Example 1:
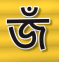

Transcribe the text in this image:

জঁ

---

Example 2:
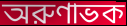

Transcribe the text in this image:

অৰুণাভক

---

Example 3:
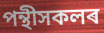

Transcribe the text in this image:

পন্থীসকলৰ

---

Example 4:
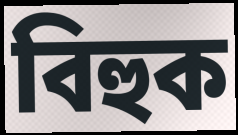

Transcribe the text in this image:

বিহুক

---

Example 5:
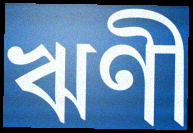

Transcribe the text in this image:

ঋণী